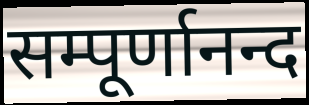
सम्पूर्णानन्द